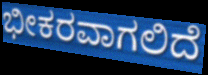
ಭೀಕರವಾಗಲಿದೆ